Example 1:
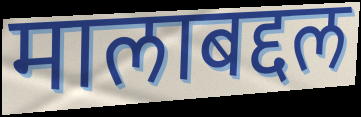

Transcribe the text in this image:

मालाबद्दल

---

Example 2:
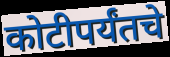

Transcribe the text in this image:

कोटीपर्यंतचे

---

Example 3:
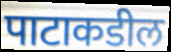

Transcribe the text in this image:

पाटाकडील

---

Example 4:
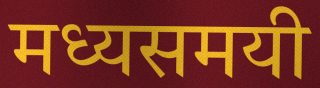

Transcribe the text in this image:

मध्यसमयी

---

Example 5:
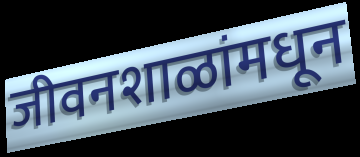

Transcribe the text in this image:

जीवनशाळांमधून